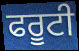
ਫਰੂਟੀ